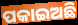
ପକାଇଅଛି